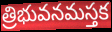
త్రిభువనమస్తక